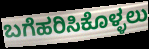
ಬಗೆಹರಿಸಿಕೊಳ್ಳಲು